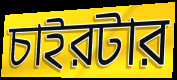
চাইরটার